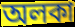
অলকা